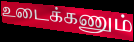
உடைக்கணும்